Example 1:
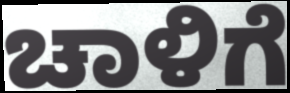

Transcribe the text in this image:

ಚಾಳಿಗೆ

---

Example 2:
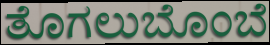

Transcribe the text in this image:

ತೊಗಲುಬೊಂಬೆ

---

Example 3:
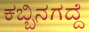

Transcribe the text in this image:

ಕಬ್ಬಿನಗದ್ದೆ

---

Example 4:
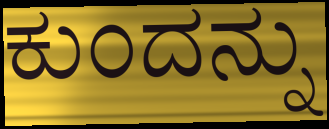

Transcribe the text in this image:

ಕುಂದನ್ನು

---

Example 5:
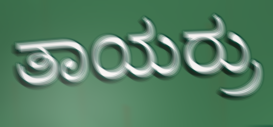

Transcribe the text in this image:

ತಾಯರ್ರು